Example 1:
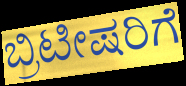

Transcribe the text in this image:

ಬ್ರಿಟೀಷರಿಗೆ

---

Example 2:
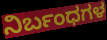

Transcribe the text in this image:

ನಿರ್ಬಂಧಗಳ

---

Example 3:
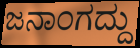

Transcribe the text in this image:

ಜನಾಂಗದ್ದು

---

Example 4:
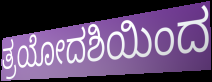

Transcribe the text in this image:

ತ್ರಯೋದಶಿಯಿಂದ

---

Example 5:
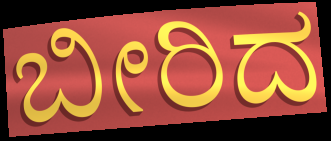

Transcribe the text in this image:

ಬೀರಿದ